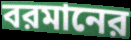
বরমানের